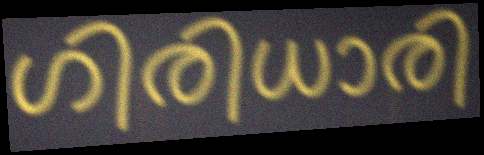
ഗിരിധാരി